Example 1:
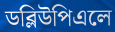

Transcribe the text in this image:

ডব্লিউপিএলে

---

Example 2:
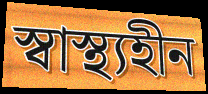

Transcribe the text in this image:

স্বাস্থ্যহীন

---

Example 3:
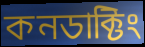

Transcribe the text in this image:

কনডাক্টিং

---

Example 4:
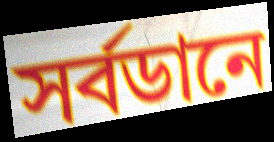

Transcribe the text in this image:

সর্বডানে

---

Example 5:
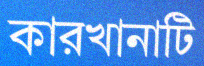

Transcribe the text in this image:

কারখানাটি